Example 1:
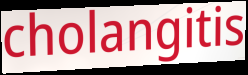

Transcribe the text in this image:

cholangitis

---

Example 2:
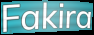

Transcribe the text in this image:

Fakira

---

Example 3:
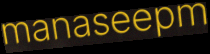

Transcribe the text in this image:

manaseepm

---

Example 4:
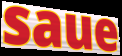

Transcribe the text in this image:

saue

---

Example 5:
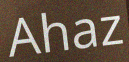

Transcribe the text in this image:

Ahaz